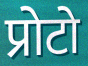
प्रोटो